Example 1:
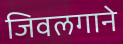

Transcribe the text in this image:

जिवलगाने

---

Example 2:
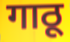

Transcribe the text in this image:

गाठू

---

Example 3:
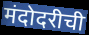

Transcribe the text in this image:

मंदोदरीची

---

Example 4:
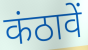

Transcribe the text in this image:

कंठावें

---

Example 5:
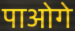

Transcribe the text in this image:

पाओगे